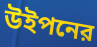
উইপনের